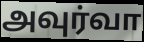
அவுர்வா